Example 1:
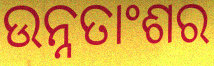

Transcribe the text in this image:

ଉନ୍ନତାଂଶର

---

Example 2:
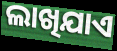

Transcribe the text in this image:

ଲାଖିଯାଏ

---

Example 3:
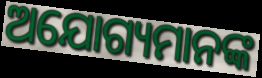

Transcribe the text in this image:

ଅଯୋଗ୍ୟମାନଙ୍କ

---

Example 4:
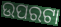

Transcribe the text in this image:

ଉପରଟା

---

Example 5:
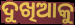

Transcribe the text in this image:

ଦୁଖିଆକୁ